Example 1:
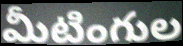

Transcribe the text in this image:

మీటింగుల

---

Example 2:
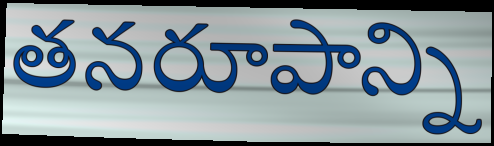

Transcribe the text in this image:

తనరూపాన్ని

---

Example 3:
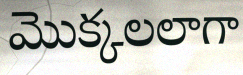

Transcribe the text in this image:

మొక్కలలాగా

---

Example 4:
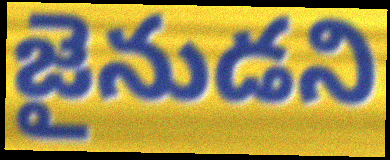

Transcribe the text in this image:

జైనుడని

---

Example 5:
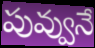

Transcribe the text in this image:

పువ్వునే